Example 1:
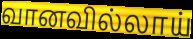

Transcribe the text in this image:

வானவில்லாய்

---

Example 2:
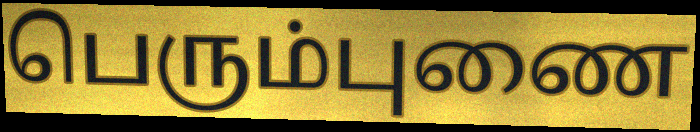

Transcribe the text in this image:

பெரும்புணை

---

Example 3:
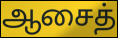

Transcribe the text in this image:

ஆசைத்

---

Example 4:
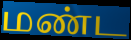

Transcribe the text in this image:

மண்ட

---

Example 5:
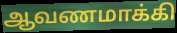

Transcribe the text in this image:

ஆவணமாக்கி